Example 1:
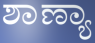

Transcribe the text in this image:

ಶಾಣ್ಯಾ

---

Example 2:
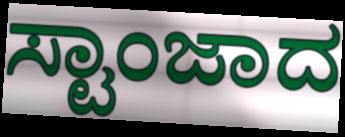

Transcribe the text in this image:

ಸ್ಟಾಂಜಾದ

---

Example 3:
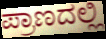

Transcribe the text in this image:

ಪ್ರಾಣದಲ್ಲಿ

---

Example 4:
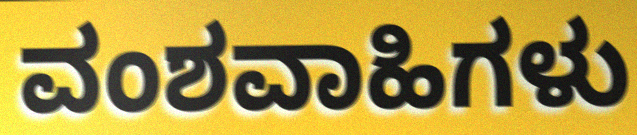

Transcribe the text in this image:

ವಂಶವಾಹಿಗಳು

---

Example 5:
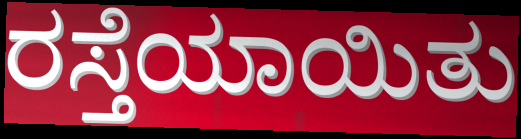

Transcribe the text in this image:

ರಸ್ತೆಯಾಯಿತು